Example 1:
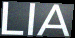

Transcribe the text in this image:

LIA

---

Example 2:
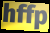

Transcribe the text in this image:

hffp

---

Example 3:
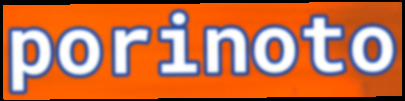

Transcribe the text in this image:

porinoto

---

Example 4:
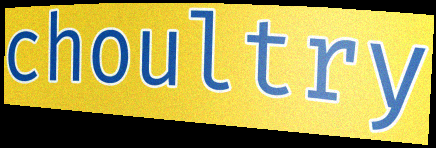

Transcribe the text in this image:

choultry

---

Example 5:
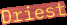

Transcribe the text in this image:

Driest